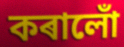
কৰালোঁ